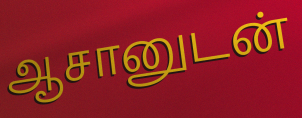
ஆசானுடன்